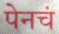
पेनचं